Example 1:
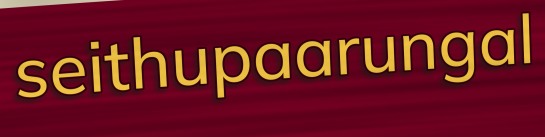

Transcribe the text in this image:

seithupaarungal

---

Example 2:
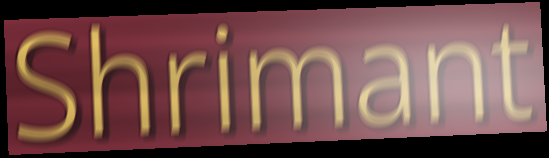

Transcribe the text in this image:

Shrimant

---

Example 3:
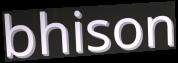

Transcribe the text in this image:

bhison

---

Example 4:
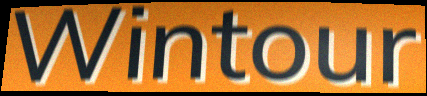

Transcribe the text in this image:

Wintour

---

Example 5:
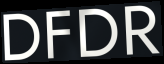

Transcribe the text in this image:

DFDR